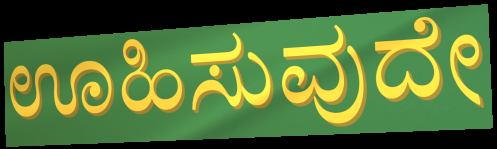
ಊಹಿಸುವುದೇ